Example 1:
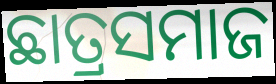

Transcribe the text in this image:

ଛାତ୍ରସମାଜ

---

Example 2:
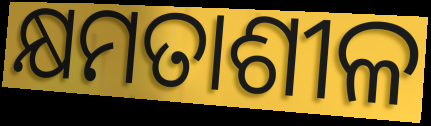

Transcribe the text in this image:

କ୍ଷମତାଶୀଳ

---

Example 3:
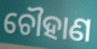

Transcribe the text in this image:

ଚୌହାଣ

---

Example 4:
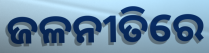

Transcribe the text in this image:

ଜଳନୀତିରେ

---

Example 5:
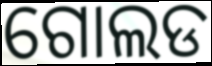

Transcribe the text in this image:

ଗୋଲଡ